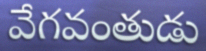
వేగవంతుడు